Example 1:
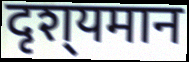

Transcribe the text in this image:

दृश्यमान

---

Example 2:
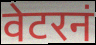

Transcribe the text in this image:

वेटरनं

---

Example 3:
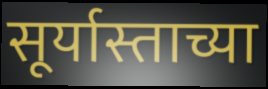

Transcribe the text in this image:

सूर्यास्ताच्या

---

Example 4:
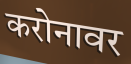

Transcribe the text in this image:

करोनावर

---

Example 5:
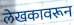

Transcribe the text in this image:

लेखकावरून